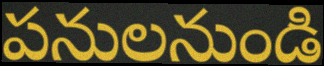
పనులనుండి